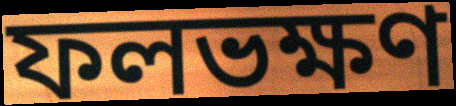
ফলভক্ষণ